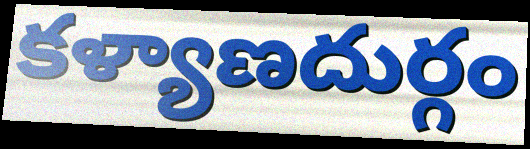
కళ్యాణదుర్గం